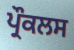
ਪ੍ਰੌਕਲਸ